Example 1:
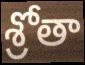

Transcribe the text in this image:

శ్రోతా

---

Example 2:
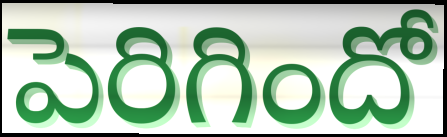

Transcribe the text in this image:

పెరిగిందో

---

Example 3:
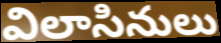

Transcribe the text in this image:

విలాసినులు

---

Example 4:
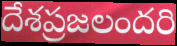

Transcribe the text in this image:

దేశప్రజలందరి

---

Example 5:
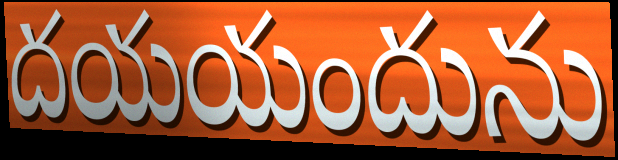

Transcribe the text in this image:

దయయందును